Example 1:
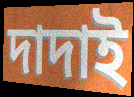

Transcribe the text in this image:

দাদাই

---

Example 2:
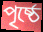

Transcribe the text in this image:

পৃষ্ঠে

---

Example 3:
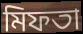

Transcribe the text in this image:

মিফতা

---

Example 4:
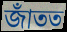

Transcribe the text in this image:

জাঁতত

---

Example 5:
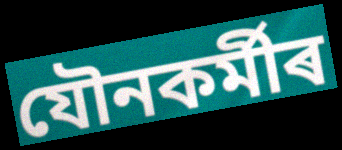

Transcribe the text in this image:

যৌনকৰ্মীৰ